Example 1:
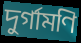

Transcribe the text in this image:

দুর্গামণি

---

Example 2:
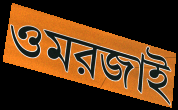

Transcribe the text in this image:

ওমরজাই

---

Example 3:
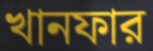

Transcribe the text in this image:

খানফার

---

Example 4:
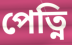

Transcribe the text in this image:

পেত্নি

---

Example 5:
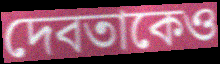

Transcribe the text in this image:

দেবতাকেও